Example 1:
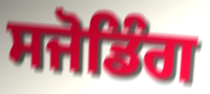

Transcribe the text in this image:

ਸਜੋਡਿੰਗ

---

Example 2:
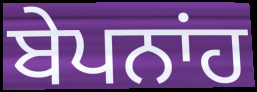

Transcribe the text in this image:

ਬੇਪਨਾਂਹ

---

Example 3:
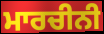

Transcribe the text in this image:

ਮਾਰਚੀਨੀ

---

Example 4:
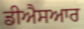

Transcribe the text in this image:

ਡੀਐਸਆਰ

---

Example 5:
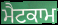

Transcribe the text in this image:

ਮੈਟਕਾਮ